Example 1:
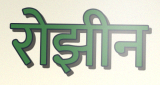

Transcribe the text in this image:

रोझीन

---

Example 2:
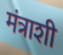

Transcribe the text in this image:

मंत्राशी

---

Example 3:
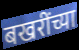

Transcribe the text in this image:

बखरींच्या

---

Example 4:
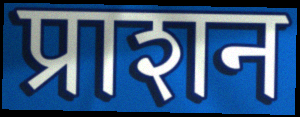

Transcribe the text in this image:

प्राशन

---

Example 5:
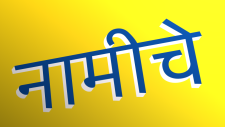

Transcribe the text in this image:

नामीचे